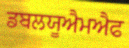
ਡਬਲਯੂਐਮਐਫ